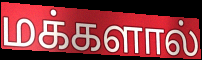
மக்களால்